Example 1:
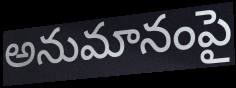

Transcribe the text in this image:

అనుమానంపై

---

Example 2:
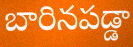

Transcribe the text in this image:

బారినపడ్డా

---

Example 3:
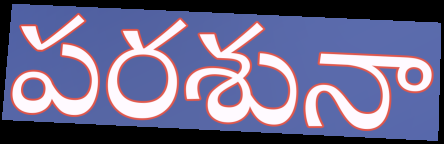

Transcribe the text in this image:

పరశునా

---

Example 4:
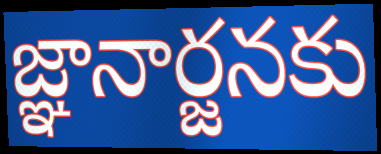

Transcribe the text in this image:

జ్ఞానార్జనకు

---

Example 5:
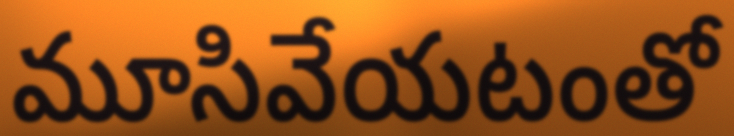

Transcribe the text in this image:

మూసివేయటంతో